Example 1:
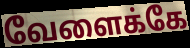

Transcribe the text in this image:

வேளைக்கே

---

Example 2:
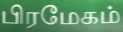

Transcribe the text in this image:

பிரமேகம்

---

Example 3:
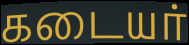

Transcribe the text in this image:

கடையர்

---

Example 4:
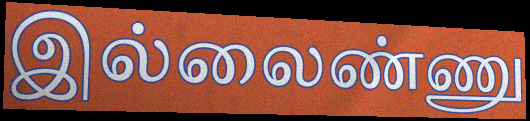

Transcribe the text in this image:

இல்லைண்ணு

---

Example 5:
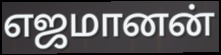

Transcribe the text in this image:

எஜமானன்